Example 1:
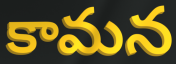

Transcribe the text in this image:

కామన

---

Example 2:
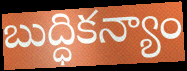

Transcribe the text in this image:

బుద్ధికన్యాం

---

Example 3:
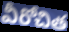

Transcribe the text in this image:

వీరోచిత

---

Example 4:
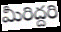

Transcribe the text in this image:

మీరిద్దరి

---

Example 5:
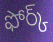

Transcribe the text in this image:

ఫోర్క్